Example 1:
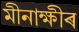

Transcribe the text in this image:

মীনাক্ষীৰ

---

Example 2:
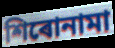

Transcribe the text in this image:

শিৰোনামা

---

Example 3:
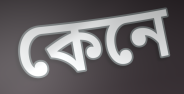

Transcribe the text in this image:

কেনে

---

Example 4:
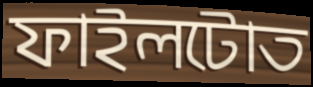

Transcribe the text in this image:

ফাইলটোত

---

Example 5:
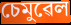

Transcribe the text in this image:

চেমুৱেল